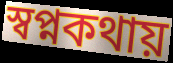
স্বপ্নকথায়